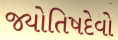
જ્યોતિષદેવો